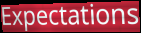
Expectations